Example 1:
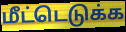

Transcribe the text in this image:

மீட்டெடுக்க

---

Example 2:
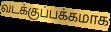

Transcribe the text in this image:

வடக்குப்பக்கமாக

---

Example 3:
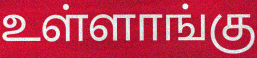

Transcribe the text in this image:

உள்ளாங்கு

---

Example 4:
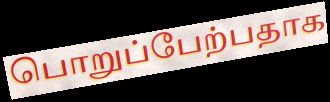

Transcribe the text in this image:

பொறுப்பேற்பதாக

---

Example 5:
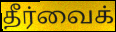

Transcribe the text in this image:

தீர்வைக்